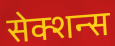
सेक्शन्स